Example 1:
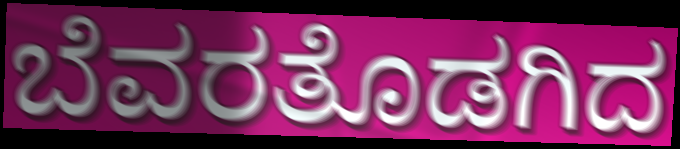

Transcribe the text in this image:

ಬೆವರತೊಡಗಿದ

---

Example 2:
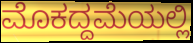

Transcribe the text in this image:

ಮೊಕದ್ದಮೆಯಲ್ಲಿ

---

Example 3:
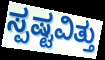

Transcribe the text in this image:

ಸ್ಪಷ್ಟವಿತ್ತು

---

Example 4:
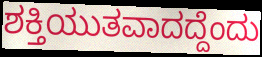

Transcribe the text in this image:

ಶಕ್ತಿಯುತವಾದದ್ದೆಂದು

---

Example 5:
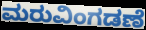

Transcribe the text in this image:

ಮರುವಿಂಗಡಣೆ